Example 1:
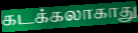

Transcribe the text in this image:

கடக்கலாகாது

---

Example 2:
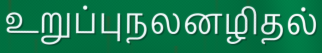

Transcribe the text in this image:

உறுப்புநலனழிதல்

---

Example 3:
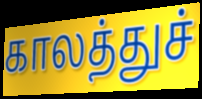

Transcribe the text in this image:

காலத்துச்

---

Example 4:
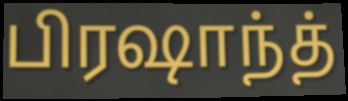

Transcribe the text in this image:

பிரஷாந்த்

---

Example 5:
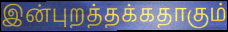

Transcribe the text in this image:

இன்புறத்தக்கதாகும்